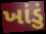
ખાંડું